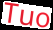
Tuo